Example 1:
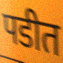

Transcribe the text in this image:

पडीत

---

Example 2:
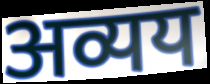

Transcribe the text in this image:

अव्यय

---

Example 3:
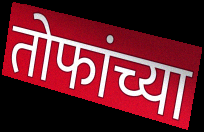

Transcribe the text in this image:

तोफांच्या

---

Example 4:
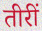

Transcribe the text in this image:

तीरीं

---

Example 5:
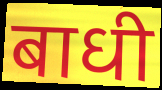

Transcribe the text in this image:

बाधी